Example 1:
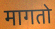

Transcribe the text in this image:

मागतो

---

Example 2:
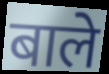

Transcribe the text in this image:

बाले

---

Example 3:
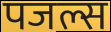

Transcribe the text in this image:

पजल्स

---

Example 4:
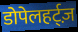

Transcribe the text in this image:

डोपेलहर्ट्ज़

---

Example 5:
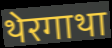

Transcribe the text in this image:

थेरगाथा